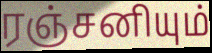
ரஞ்சனியும்